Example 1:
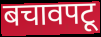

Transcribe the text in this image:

बचावपटू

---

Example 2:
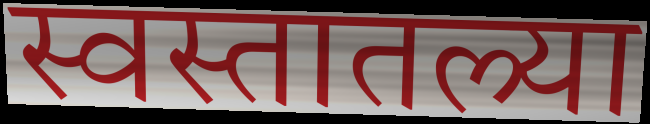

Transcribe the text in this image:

स्वस्तातल्या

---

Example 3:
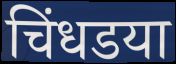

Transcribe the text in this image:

चिंधडया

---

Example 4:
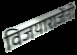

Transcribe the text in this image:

विजयाराजेंनी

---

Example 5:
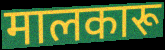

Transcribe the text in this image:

मालकारू